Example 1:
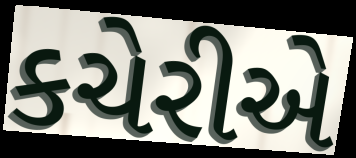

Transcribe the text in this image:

કચેરીએ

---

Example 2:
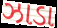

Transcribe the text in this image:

ઝાડા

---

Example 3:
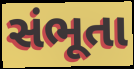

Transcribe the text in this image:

સંભૂતા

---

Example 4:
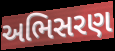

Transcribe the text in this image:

અભિસરણ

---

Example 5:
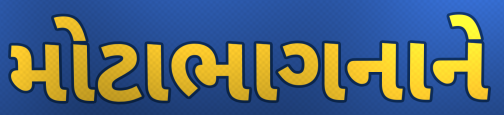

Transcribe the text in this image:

મોટાભાગનાને